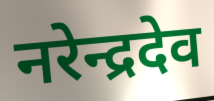
नरेन्द्रदेव